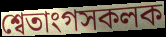
শ্বেতাংগসকলক